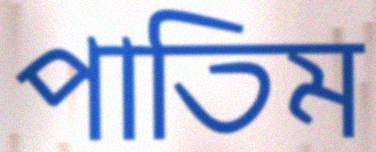
পাতিম